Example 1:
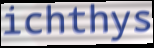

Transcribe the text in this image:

ichthys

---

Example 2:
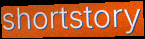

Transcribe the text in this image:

shortstory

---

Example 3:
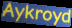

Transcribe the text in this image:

Aykroyd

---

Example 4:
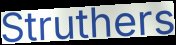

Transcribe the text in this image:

Struthers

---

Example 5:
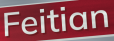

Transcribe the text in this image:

Feitian